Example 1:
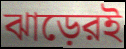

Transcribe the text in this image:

ঝাড়েরই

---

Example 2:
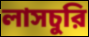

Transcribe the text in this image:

লাসচুরি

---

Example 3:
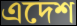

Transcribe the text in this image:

এদেশ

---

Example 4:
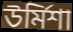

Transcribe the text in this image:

উর্মিশা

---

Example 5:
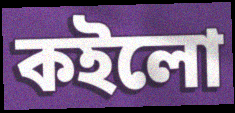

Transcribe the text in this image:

কইলো